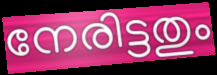
നേരിട്ടതും